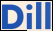
Dill